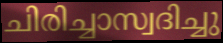
ചിരിച്ചാസ്വദിച്ചു